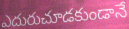
ఎదురుచూడకుండానే